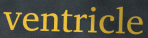
ventricle